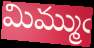
మిమ్ముఁ